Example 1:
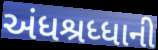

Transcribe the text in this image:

અંધશ્રધ્ધાની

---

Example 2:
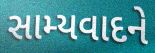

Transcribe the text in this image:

સામ્યવાદને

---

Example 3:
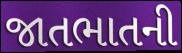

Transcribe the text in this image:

જાતભાતની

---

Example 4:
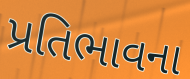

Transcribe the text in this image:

પ્રતિભાવના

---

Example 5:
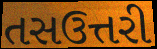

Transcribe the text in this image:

તસઉત્તરી